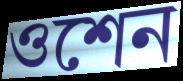
ওশেন